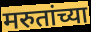
मरुतांच्या